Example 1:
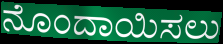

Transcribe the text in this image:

ನೊಂದಾಯಿಸಲು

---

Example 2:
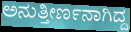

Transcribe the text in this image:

ಅನುತ್ತೀರ್ಣನಾಗಿದ್ದ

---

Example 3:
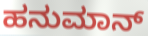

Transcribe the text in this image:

ಹನುಮಾನ್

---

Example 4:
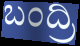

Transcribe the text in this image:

ಬಂದ್ರಿ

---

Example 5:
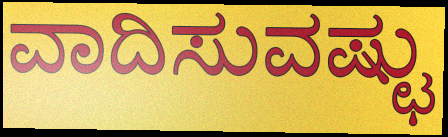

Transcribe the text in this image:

ವಾದಿಸುವಷ್ಟು